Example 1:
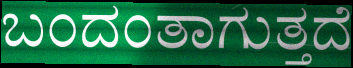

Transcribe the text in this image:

ಬಂದಂತಾಗುತ್ತದೆ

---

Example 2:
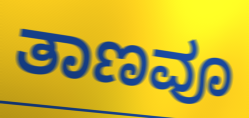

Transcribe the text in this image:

ತಾಣವೂ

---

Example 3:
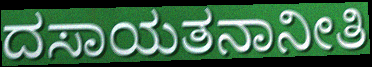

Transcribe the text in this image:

ದಸಾಯತನಾನೀತಿ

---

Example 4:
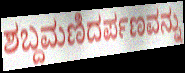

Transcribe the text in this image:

ಶಬ್ದಮಣಿದರ್ಪಣವನ್ನು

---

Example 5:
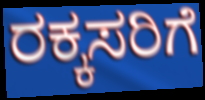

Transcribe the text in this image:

ರಕ್ಕಸರಿಗೆ